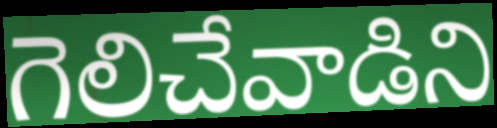
గెలిచేవాడిని